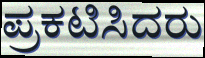
ಪ್ರಕಟಿಸಿದರು